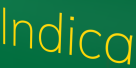
Indica